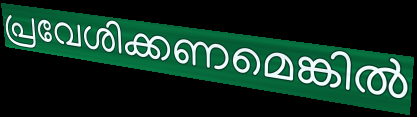
പ്രവേശിക്കണമെങ്കിൽ